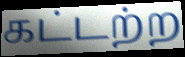
கட்டற்ற